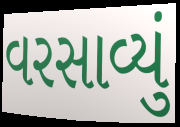
વરસાવ્યું